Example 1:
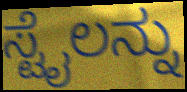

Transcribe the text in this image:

ಸ್ಟೈಲನ್ನು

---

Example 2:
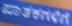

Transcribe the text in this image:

ಪಾತಕಗಳಿಗೆ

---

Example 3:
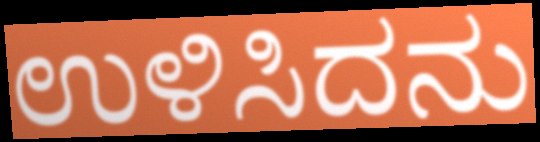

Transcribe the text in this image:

ಉಳಿಸಿದನು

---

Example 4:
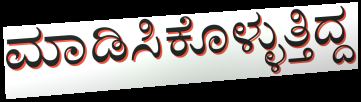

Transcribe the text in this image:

ಮಾಡಿಸಿಕೊಳ್ಳುತ್ತಿದ್ದ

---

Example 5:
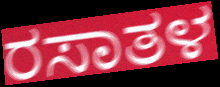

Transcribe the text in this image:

ರಸಾತಳ